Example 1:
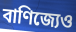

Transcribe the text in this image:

বাণিজ্যেও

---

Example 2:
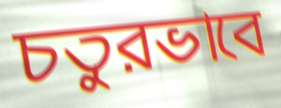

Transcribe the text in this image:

চতুরভাবে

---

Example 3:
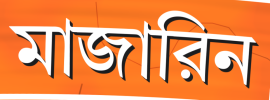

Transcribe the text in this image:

মাজারিন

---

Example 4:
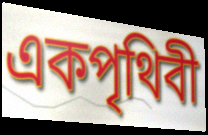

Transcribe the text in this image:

একপৃথিবী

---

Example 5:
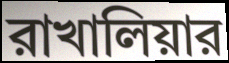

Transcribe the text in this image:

রাখালিয়ার